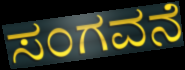
ಸಂಗವನೆ